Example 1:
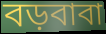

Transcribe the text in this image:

বড়বাবা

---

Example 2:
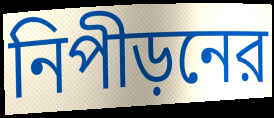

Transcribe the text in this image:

নিপীড়নের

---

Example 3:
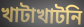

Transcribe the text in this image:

খাটাখাটনি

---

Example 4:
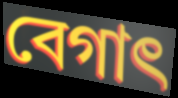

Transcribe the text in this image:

বেগাৎ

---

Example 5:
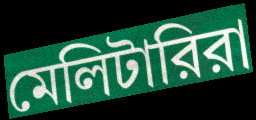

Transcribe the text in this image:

মেলিটারিরা